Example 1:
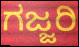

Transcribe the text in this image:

ಗಜ್ಜರಿ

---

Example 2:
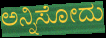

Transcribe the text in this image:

ಅನ್ನಿಸೋದು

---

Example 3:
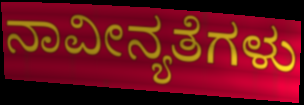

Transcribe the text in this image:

ನಾವೀನ್ಯತೆಗಳು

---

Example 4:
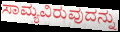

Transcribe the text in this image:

ಸಾಮ್ಯವಿರುವುದನ್ನು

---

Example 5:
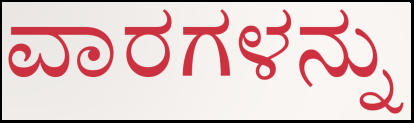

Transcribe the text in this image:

ವಾರಗಳನ್ನು